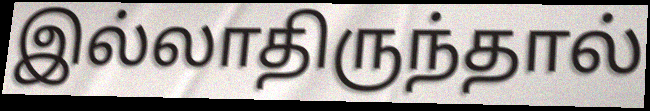
இல்லாதிருந்தால்